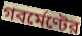
গবর্মেণ্টের